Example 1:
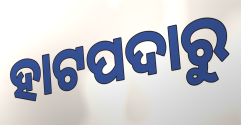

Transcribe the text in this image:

ହାଟପଦାରୁ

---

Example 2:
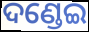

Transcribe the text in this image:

ଦଣ୍ଡେଇ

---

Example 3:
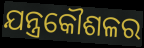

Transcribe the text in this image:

ଯନ୍ତ୍ରକୌଶଳର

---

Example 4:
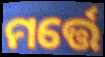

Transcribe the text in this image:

ମର୍ତ୍ତେ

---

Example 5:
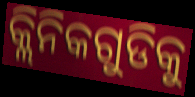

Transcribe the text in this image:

କ୍ଲିନିକଗୁଡିକୁ